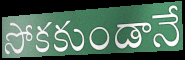
సోకకుండానే